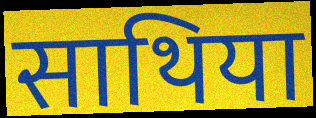
साथिया